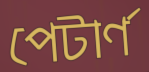
পেটাৰ্ণ